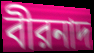
বীরনাদ